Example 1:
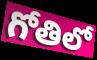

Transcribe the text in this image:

గోతిలో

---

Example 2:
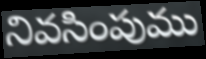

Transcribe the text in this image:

నివసింపుము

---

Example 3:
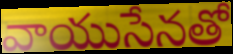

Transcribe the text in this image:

వాయుసేనతో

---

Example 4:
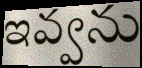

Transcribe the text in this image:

ఇవ్వను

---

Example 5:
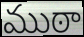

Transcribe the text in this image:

ముఠా